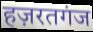
हज़रतगंज